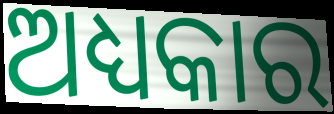
ଅଧ୍ଯକାର